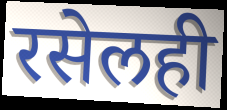
रसेलही